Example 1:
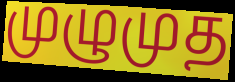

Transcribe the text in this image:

முழுமுத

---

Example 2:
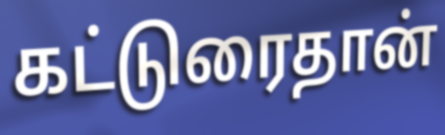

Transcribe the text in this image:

கட்டுரைதான்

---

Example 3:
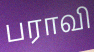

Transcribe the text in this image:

பராவி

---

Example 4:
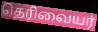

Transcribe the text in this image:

தெரிவையர்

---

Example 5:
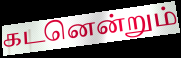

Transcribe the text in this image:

கடனென்றும்